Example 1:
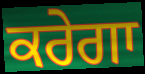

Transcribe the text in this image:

ਕਰੇਗਾ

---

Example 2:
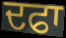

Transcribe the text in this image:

ਦਫਾ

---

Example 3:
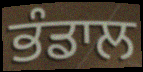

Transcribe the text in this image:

ਭੰਡਾਲ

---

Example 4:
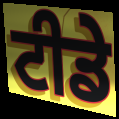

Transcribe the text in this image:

ਟੀਡੇ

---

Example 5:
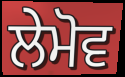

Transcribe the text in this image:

ਲੇਮੋਵ